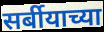
सर्बीयाच्या